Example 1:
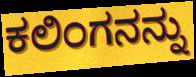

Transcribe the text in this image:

ಕಲಿಂಗನನ್ನು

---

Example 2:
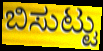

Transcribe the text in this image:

ಬಿಸುಟ್ಟು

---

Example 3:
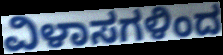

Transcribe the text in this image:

ವಿಳಾಸಗಳಿಂದ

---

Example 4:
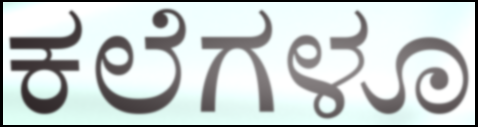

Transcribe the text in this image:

ಕಲೆಗಳೂ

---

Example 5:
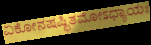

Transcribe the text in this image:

ಏಕೋನಷಷ್ಟಿತಮೋಽಧ್ಯಾಯಃ